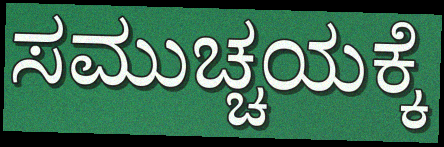
ಸಮುಚ್ಚಯಕ್ಕೆ